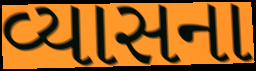
વ્યાસના